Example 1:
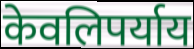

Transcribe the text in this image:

केवलिपर्याय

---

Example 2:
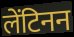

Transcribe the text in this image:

लेंटिनन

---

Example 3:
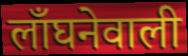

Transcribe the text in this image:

लाँघनेवाली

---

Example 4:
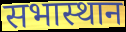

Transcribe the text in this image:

सभास्थान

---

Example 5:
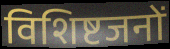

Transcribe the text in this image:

विशिष्टजनों